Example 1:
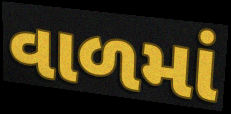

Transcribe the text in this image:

વાળમાં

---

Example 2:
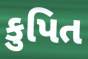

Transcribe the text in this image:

કુપિત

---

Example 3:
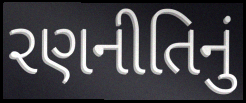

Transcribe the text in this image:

રણનીતિનું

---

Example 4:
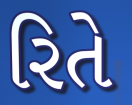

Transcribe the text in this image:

રિતે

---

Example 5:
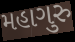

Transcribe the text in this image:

મહાગુરુ